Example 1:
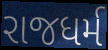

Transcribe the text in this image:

રાજધર્મ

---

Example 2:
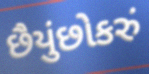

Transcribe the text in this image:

છૈયુંછોકરું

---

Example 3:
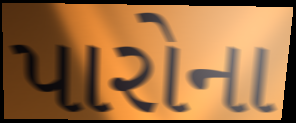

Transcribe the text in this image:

પારોના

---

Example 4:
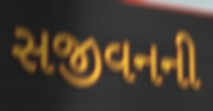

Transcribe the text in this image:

સજીવનની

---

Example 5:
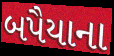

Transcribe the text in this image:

બપૈયાના